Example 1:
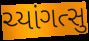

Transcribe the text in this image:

ચ્યાંગત્સુ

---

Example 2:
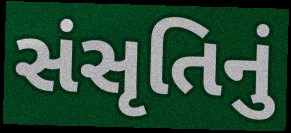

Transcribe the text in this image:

સંસૃતિનું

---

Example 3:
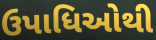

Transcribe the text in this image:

ઉપાધિઓથી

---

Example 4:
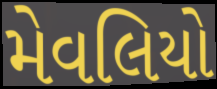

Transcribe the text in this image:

મેવલિયો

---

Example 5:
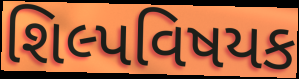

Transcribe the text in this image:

શિલ્પવિષયક